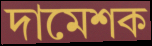
দামেশক